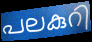
പലകുറി